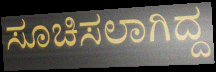
ಸೂಚಿಸಲಾಗಿದ್ದ